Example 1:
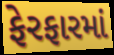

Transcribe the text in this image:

ફેરફારમાં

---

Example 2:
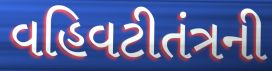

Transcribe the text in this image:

વહિવટીતંત્રની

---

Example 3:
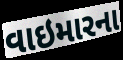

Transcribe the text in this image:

વાઇમારના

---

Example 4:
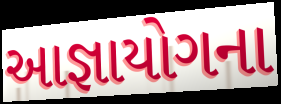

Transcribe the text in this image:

આજ્ઞાયોગના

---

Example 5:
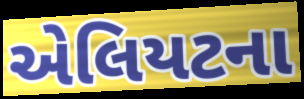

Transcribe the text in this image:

એલિયટના